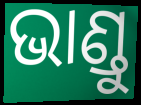
ଭାଣ୍ଡୁ